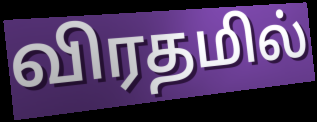
விரதமில்